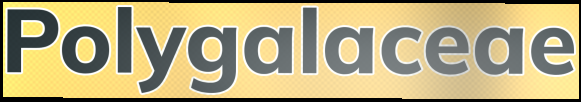
Polygalaceae